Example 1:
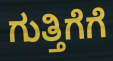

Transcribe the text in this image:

ಗುತ್ತಿಗೆಗೆ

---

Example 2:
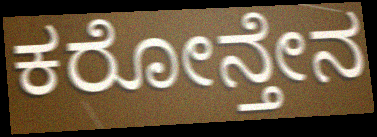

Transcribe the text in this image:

ಕರೋನ್ತೇನ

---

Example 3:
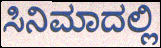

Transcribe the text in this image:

ಸಿನಿಮಾದಲ್ಲಿ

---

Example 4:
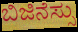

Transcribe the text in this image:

ಬಿಜಿನೆಸ್ಸು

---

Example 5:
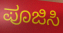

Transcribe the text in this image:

ಪೂಜಿಸಿ